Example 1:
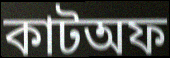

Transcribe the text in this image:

কাটঅফ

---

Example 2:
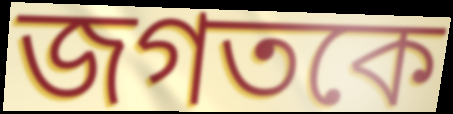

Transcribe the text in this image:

জগতকে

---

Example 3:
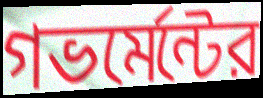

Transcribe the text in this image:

গভর্মেন্টের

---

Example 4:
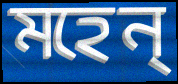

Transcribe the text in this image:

মহেন্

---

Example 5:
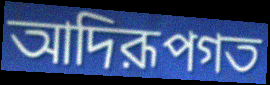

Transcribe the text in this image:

আদিরূপগত